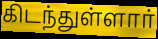
கிடந்துள்ளார்